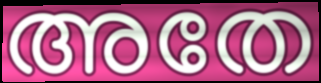
അതേ